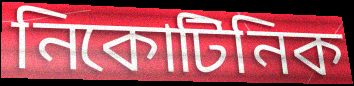
নিকোটিনিক